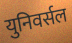
युनिवर्सल